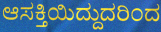
ಆಸಕ್ತಿಯಿದ್ದುದರಿಂದ